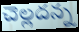
చెల్లదన్న